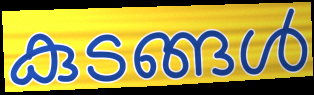
കുടങ്ങൾ